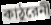
কাঠুরেনী